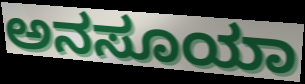
ಅನಸೂಯಾ